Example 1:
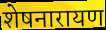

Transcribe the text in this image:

शेषनारायण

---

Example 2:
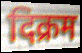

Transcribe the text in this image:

दिक्रम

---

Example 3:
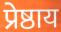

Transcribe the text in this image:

प्रेष्ठाय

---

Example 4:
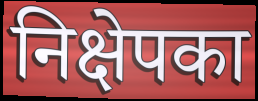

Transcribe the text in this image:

निक्षेपका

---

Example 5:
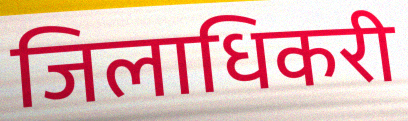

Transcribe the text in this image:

जिलाधिकरी